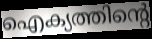
ഐക്യത്തിന്റെ